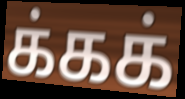
க்கக்